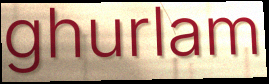
ghurlam